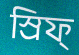
স্রিফ্